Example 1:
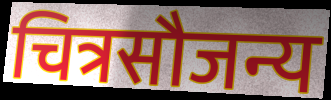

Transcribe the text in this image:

चित्रसौजन्य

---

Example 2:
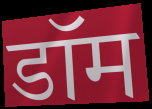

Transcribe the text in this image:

डॉम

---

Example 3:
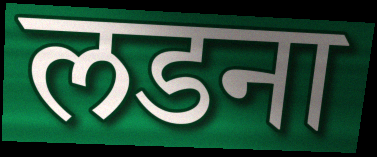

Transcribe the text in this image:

लडना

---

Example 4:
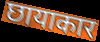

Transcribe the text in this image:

छायाकार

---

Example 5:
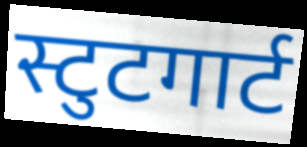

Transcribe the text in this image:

स्टुटगार्ट